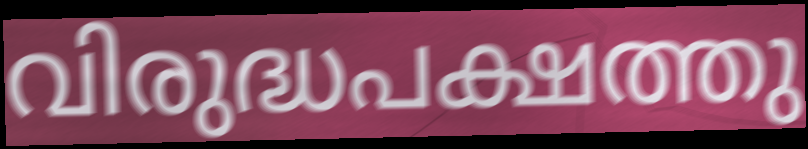
വിരുദ്ധപക്ഷത്തു